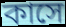
কাসে